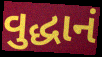
વુદ્ધાનં